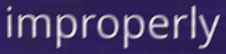
improperly